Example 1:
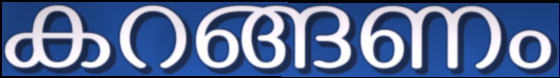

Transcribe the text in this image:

കറങ്ങണം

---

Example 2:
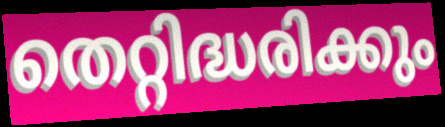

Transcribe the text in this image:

തെറ്റിദ്ധരിക്കും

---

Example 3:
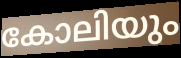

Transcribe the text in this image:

കോലിയും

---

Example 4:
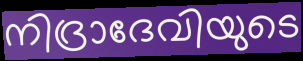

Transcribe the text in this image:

നിദ്രാദേവിയുടെ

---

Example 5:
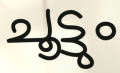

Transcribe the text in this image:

ചൂട്ടും